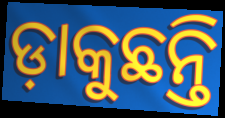
ଡ଼ାକୁଛନ୍ତି